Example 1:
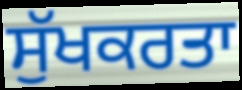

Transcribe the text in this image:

ਸੁੱਖਕਰਤਾ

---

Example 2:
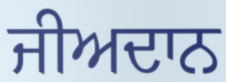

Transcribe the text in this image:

ਜੀਅਦਾਨ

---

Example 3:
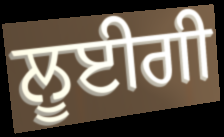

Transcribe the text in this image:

ਲੂਈਗੀ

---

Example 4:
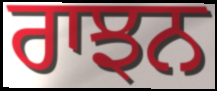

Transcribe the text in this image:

ਰਾਝਨ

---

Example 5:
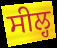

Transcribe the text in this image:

ਸੀਲ੍ਹ